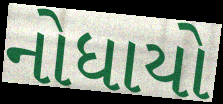
નોધાયો